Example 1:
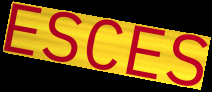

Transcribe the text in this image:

ESCES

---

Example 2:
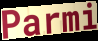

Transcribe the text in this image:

Parmi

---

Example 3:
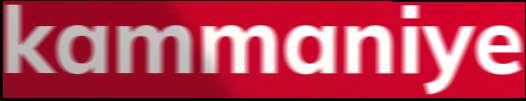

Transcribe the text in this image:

kammaniye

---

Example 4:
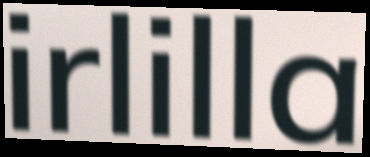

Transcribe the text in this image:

irlilla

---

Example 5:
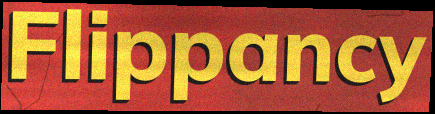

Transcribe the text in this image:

Flippancy